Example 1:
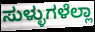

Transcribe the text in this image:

ಸುಳ್ಳುಗಳೆಲ್ಲಾ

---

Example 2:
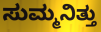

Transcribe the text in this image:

ಸುಮ್ಮನಿತ್ತು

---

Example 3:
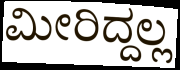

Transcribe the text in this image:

ಮೀರಿದ್ದಲ್ಲ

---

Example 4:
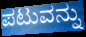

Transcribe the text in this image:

ಪಟುವನ್ನು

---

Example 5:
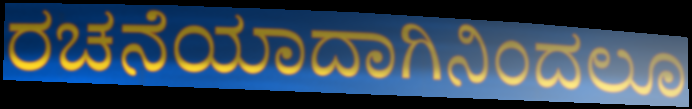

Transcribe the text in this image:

ರಚನೆಯಾದಾಗಿನಿಂದಲೂ